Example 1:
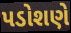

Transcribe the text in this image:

પડોશણે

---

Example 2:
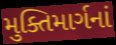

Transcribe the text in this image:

મુક્તિમાર્ગનાં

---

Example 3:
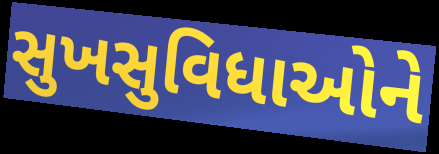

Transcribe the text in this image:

સુખસુવિધાઓને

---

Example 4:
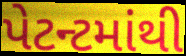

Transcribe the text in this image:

પેટન્ટમાંથી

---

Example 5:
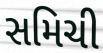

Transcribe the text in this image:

સમિચી